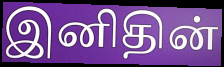
இனிதின்